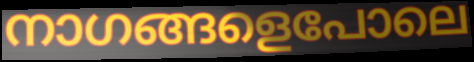
നാഗങ്ങളെപോലെ